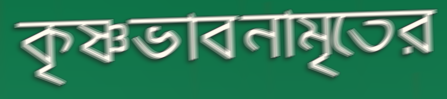
কৃষ্ণভাবনামৃতের